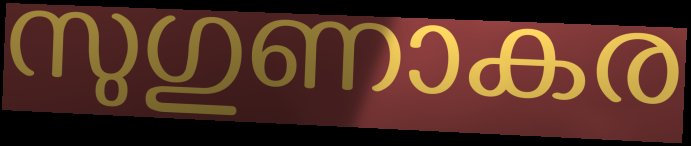
സുഗുണാകര